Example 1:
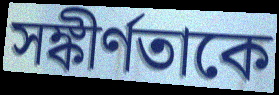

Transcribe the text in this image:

সঙ্কীর্ণতাকে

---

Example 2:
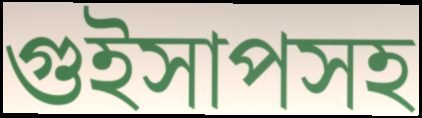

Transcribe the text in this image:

গুইসাপসহ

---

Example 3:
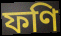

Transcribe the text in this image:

ফণি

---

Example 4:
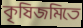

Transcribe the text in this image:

কৃষিজমিতে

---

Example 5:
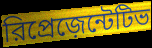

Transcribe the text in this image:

রিপ্রেজ়েন্টেটিভ